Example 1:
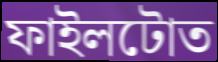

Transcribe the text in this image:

ফাইলটোত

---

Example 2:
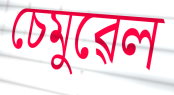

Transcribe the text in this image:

চেমুৱেল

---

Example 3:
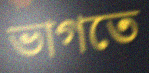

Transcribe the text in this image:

ভাগতে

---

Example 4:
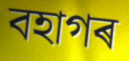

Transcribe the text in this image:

বহাগৰ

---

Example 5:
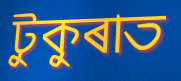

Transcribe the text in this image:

টুকুৰাত